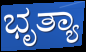
ಭೃತ್ಯಾ